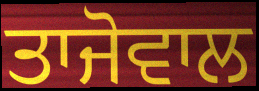
ਤਾਜੋਵਾਲ